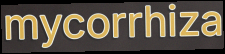
mycorrhiza